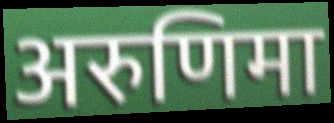
अरुणिमा